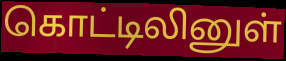
கொட்டிலினுள்